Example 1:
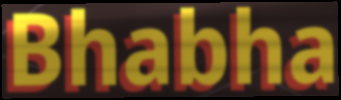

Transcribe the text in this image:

Bhabha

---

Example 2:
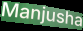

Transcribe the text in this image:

Manjusha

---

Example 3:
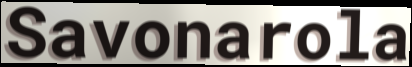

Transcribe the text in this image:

Savonarola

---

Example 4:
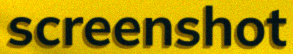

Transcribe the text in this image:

screenshot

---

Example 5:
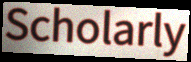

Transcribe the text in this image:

Scholarly